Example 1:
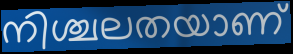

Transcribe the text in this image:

നിശ്ചലതയാണ്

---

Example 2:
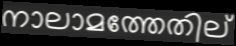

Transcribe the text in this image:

നാലാമത്തേതില്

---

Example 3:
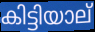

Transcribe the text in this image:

കിട്ടിയാല്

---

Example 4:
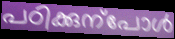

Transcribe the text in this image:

പഠിക്കുന്പോൾ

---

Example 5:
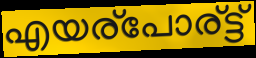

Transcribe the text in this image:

എയര്പോര്ട്ട്